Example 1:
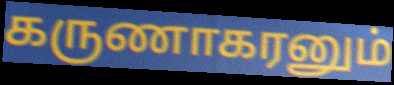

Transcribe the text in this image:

கருணாகரனும்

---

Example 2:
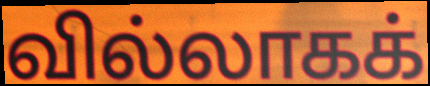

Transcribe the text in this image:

வில்லாகக்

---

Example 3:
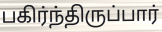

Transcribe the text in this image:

பகிர்ந்திருப்பார்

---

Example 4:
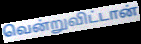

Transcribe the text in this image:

வென்றுவிட்டான்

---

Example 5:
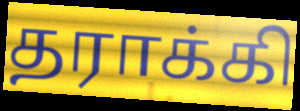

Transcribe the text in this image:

தராக்கி